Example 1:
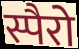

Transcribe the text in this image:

स्पैरो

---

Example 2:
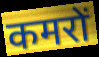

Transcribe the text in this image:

कमरों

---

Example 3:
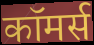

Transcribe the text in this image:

कॉमर्स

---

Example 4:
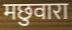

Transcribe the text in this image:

मछुवारा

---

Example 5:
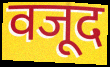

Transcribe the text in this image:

वजूद